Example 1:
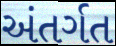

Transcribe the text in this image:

અંતર્ગત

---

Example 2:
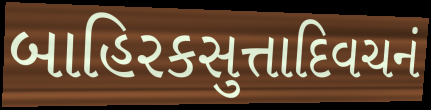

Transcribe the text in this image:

બાહિરકસુત્તાદિવચનં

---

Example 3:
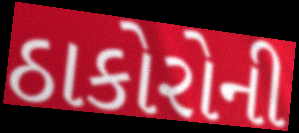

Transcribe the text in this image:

ઠાકોરોની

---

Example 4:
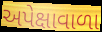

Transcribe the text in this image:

અપેક્ષાવાળા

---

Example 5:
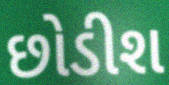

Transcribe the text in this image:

છોડીશ